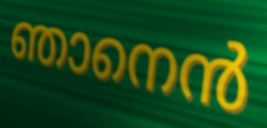
ഞാനെൻ